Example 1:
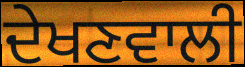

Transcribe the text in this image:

ਦੇਖਣਵਾਲੀ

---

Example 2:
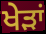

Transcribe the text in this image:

ਖੇੜਾਂ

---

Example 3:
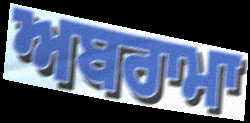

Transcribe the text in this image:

ਅਬਰਾਮਾ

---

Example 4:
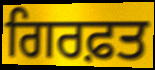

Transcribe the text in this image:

ਗਿਰਫ਼ਤ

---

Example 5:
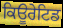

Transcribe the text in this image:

ਕਿਊਰੇਟਿਡ